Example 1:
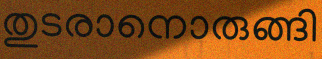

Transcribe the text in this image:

തുടരാനൊരുങ്ങി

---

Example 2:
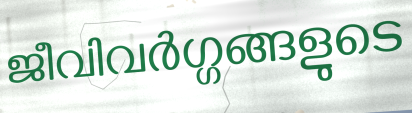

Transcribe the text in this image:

ജീവിവർഗ്ഗങ്ങളുടെ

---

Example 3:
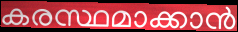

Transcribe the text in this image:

കരസ്ഥമാക്കാൻ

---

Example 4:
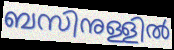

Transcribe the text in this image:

ബസിനുള്ളിൽ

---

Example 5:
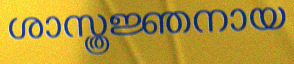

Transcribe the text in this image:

ശാസ്ത്രജ്ഞനായ